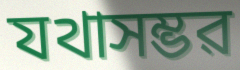
যথাসম্ভৱ